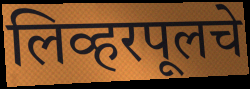
लिव्हरपूलचे